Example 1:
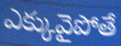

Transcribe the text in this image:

ఎక్కువైపోతే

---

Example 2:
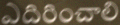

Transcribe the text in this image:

ఎదిరించాలి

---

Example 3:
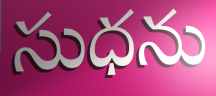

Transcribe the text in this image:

సుధను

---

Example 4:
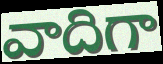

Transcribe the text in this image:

వాదిగా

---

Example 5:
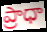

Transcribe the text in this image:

ప్రాధా